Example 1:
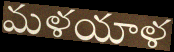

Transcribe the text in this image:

మళయాళ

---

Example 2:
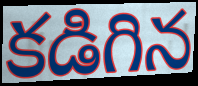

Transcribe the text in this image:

కడిగిన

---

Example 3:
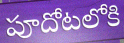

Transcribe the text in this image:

పూదోటలోకి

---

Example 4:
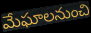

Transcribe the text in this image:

మేఘాలనుంచి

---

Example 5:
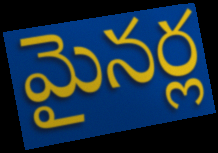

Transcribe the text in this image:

మైనర్ల